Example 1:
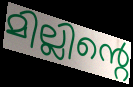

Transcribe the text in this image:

മില്ലിന്റെ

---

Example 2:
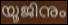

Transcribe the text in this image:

യൂജിനും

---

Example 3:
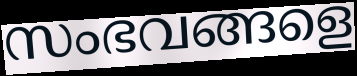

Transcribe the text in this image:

സംഭവങ്ങളെ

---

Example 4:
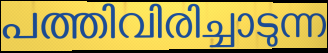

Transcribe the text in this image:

പത്തിവിരിച്ചാടുന്ന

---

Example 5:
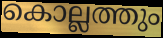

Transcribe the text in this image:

കൊല്ലത്തും